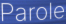
Parole